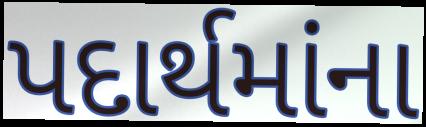
પદાર્થમાંના